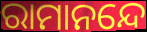
ରାମାନନ୍ଦେ